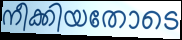
നീക്കിയതോടെ